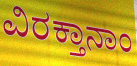
ವಿರಕ್ತಾನಾಂ